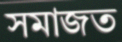
সমাজত